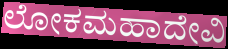
ಲೋಕಮಹಾದೇವಿ